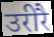
उरीरै